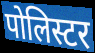
पोलिस्टर